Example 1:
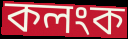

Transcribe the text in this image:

কলংক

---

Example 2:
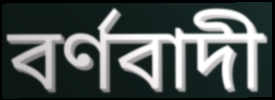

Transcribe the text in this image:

বর্ণবাদী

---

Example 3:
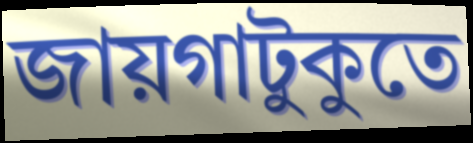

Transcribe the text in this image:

জায়গাটুকুতে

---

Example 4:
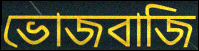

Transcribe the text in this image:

ভোজবাজি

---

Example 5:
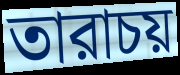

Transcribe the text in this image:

তারাচয়